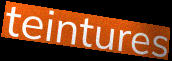
teintures